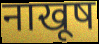
नाखूष